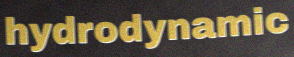
hydrodynamic